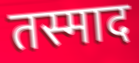
तस्माद